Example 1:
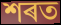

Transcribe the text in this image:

শৰত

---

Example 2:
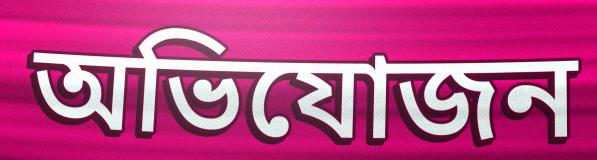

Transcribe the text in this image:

অভিযোজন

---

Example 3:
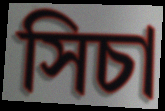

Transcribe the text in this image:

সিচা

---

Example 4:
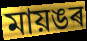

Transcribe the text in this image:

মায়ঙৰ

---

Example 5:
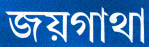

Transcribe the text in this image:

জয়গাথা